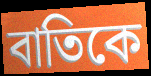
বাতিকে